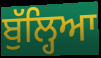
ਬੁੱਲ੍ਹਿਆ